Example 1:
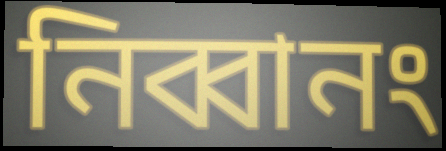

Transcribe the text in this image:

নিব্বানং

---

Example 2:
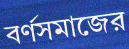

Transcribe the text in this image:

বর্ণসমাজের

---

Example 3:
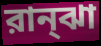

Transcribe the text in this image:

রান্ঝা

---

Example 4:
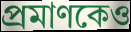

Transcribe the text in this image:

প্রমাণকেও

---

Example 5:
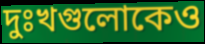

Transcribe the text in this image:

দুঃখগুলোকেও